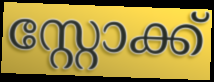
സ്റ്റോക്ക്